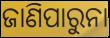
ଜାଣିପାରୁନା